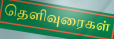
தெளிவுரைகள்